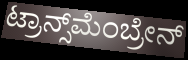
ಟ್ರಾನ್ಸ್‌ಮೆಂಬ್ರೇನ್